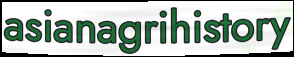
asianagrihistory